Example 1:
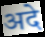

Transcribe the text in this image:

अदे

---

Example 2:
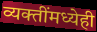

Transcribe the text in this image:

व्यक्तींमध्येही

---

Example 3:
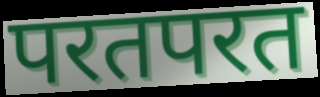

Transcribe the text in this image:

परतपरत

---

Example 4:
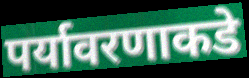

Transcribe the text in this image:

पर्यावरणाकडे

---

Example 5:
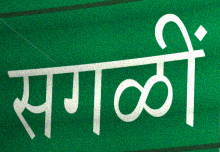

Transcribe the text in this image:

सगळीं